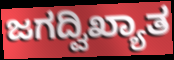
ಜಗದ್ವಿಖ್ಯಾತ